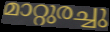
മാറ്റുരച്ചു